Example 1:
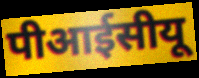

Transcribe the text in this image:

पीआईसीयू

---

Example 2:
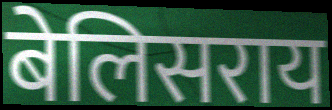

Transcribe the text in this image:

बेलिसराय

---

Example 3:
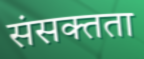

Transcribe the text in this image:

संसक्तता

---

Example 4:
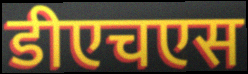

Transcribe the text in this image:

डीएचएस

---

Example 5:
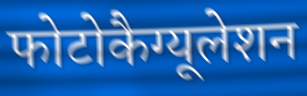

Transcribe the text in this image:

फोटोकैग्यूलेशन